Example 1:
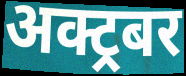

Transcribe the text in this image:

अक्ट्रबर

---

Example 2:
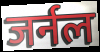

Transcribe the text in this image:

जर्नल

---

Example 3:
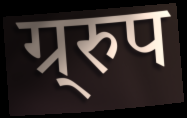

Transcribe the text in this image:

ग्र्रुप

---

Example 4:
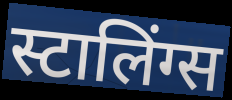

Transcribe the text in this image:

स्टालिंग्स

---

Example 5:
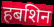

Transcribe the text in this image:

हबशिन